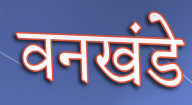
वनखंडे